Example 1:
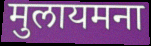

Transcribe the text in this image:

मुलायमना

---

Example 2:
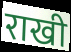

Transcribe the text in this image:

राखी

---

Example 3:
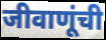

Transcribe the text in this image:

जीवाणूंची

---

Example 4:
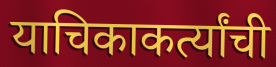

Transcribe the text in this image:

याचिकाकर्त्यांची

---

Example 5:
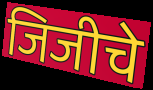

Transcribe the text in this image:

जिजीचे